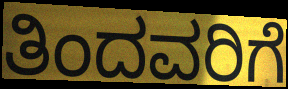
ತಿಂದವರಿಗೆ